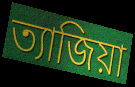
ত্যাজিয়া